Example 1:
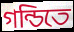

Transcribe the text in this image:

গন্ডিতে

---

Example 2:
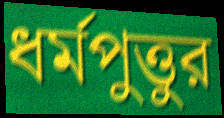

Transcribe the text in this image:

ধর্মপুত্তুর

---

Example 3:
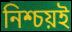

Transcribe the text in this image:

নিশ্চয়ই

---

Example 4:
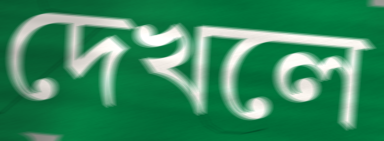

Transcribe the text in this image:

দেখলে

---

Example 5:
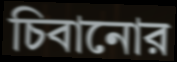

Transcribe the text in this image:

চিবানোর